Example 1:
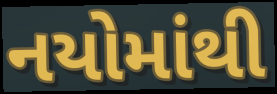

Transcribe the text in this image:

નયોમાંથી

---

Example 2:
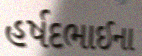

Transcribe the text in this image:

હર્ષદભાઈના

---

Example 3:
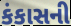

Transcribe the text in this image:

કંકાસની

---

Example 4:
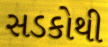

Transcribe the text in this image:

સડકોથી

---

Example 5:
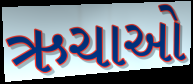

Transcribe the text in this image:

ઋચાઓ